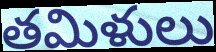
తమిళులు